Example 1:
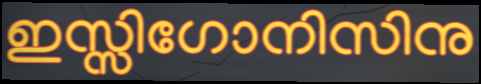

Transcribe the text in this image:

ഇസ്സിഗോനിസിനു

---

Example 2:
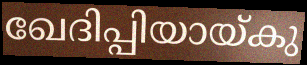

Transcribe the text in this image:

ഖേദിപ്പിയായ്കു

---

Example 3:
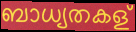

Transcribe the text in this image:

ബാധ്യതകള്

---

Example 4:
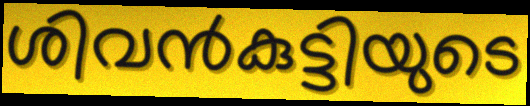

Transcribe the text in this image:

ശിവൻകുട്ടിയുടെ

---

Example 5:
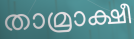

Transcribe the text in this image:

താമ്രാക്ഷീ